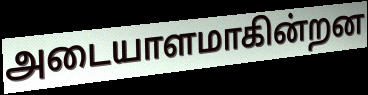
அடையாளமாகின்றன